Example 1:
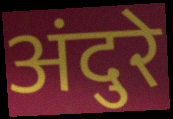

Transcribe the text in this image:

अंदुरे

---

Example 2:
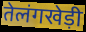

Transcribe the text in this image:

तेलंगखेड़ी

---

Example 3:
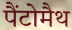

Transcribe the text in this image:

पैंटोमैथ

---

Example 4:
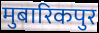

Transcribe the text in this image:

मुबारिकपुर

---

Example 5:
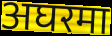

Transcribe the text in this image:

अघरमा